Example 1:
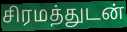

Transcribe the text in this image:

சிரமத்துடன்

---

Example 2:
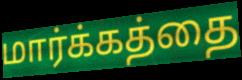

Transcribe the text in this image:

மார்க்கத்தை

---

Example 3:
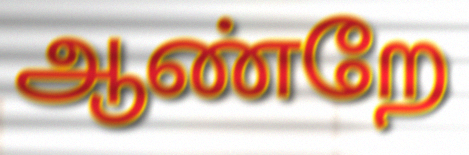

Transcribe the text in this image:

ஆண்றே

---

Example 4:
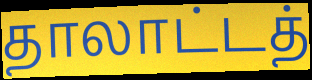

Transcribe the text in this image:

தாலாட்டத்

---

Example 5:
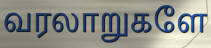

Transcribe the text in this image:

வரலாறுகளே